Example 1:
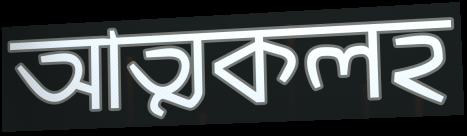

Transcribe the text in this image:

আত্মকলহ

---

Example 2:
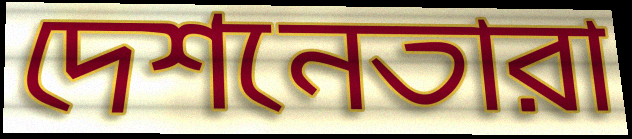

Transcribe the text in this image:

দেশনেতারা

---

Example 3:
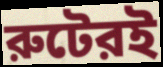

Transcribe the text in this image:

রুটেরই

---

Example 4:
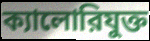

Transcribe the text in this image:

ক্যালোরিযুক্ত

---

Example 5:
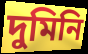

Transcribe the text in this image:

দুমিনি